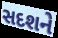
સદશને